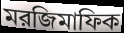
মরজিমাফিক